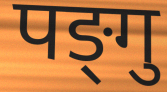
पङ्गु